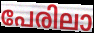
പേരിലാ